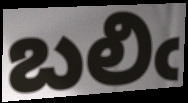
బలిఁ